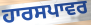
ਹਾਰਸਪਾਵਰ